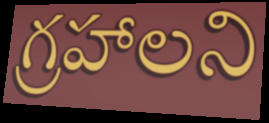
గ్రహాలని